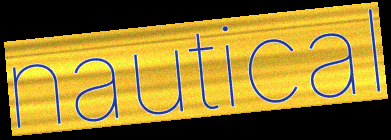
nautical